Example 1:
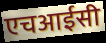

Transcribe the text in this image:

एचआईसी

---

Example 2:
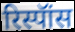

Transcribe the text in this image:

रिस्पॉंस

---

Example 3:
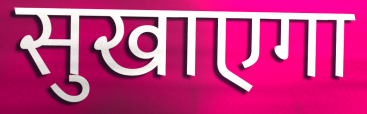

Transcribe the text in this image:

सुखाएगा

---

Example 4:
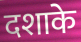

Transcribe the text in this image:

दशाके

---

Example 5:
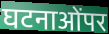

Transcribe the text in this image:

घटनाओंपर